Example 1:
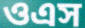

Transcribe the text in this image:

ওএস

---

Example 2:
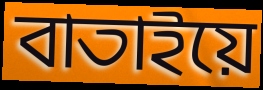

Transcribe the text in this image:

বাতাইয়ে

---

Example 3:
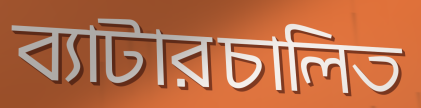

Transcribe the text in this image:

ব্যাটারচালিত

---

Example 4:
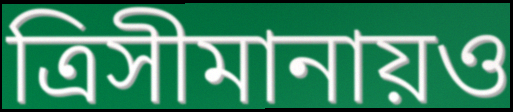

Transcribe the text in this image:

ত্রিসীমানায়ও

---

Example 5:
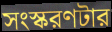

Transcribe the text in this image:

সংস্করণটার